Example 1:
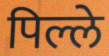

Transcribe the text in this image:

पिल्ले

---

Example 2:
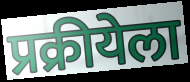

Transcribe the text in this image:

प्रक्रीयेला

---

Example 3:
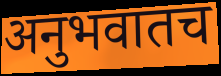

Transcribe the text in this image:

अनुभवातच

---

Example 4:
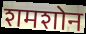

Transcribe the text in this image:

शमशोन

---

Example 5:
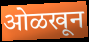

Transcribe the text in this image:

ओळखून